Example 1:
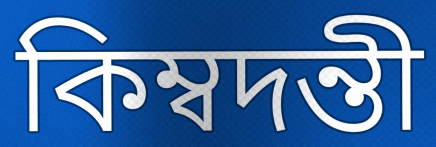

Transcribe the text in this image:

কিম্বদন্তী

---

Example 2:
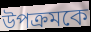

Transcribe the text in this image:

উপক্রমকে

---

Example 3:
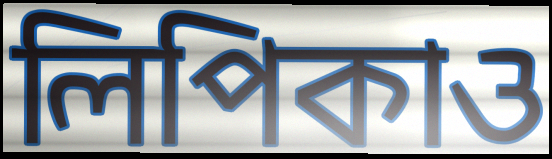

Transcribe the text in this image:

লিপিকাও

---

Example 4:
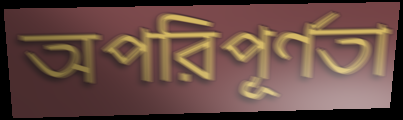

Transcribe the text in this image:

অপরিপূর্ণতা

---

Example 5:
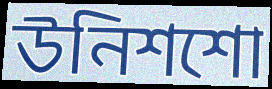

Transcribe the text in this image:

উনিশশো